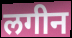
लगीन